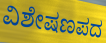
ವಿಶೇಷಣಪದ